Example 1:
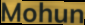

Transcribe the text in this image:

Mohun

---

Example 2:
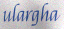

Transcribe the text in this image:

ulargha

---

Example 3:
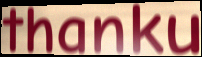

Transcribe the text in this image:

thanku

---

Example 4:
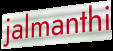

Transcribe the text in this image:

jalmanthi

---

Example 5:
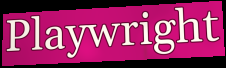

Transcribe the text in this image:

Playwright